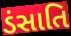
ડંસાતિ